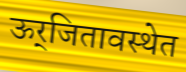
ऊर्जितावस्थेत